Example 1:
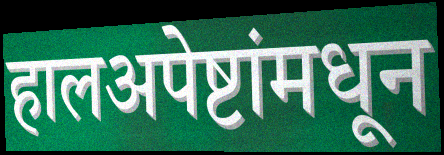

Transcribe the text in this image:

हालअपेष्टांमधून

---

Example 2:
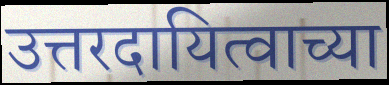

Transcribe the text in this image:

उत्तरदायित्वाच्या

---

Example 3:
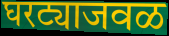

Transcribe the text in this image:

घरट्याजवळ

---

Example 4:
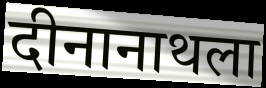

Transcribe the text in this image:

दीनानाथला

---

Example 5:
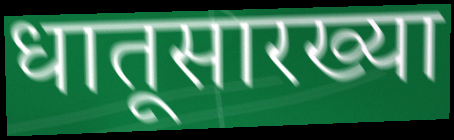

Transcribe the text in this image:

धातूसारख्या